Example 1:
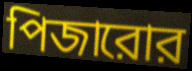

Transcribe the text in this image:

পিজারোর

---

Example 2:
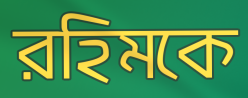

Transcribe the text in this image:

রহিমকে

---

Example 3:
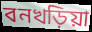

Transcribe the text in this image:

বনখড়িয়া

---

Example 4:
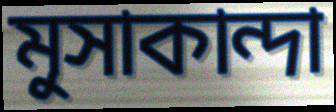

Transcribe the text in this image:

মুসাকান্দা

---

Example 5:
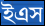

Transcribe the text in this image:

ইএস